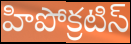
హిపోక్రటిస్